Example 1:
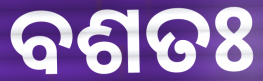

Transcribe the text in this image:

ବଶତଃ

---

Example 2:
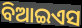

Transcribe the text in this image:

ବିଆଇଏସ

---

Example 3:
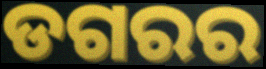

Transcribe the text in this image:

ଡଗରର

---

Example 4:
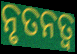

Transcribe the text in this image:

ନୃତନତ୍ୱ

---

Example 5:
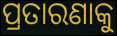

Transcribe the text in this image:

ପ୍ରତାରଣାକୁ